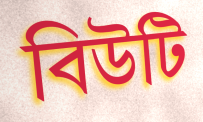
বিউটি